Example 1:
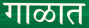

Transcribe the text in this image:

गाळात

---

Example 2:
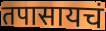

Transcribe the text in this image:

तपासायचं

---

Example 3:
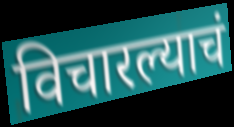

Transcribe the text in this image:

विचारल्याचं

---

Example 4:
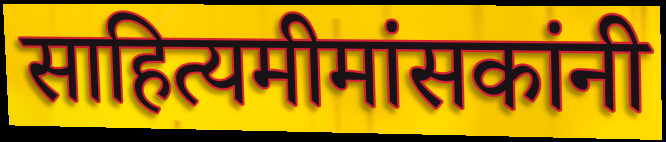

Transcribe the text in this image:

साहित्यमीमांसकांनी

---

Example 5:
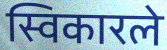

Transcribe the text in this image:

स्विकारले